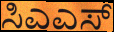
ಸಿಎಎಸ್